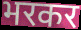
भरकर